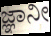
ಜ್ಞಾನೀ